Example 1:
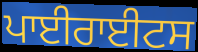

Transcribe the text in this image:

ਪਾਈਰਾਈਟਸ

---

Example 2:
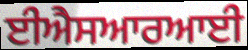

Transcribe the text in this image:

ਈਐਸਆਰਆਈ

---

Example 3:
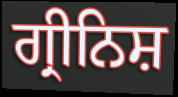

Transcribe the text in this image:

ਗ੍ਰੀਨਿਸ਼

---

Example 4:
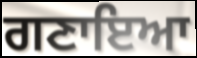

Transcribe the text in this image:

ਗਣਾਇਆ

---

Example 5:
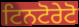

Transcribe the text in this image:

ਟਿਨਟੋਰੇਟੋ